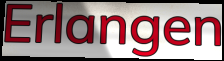
Erlangen